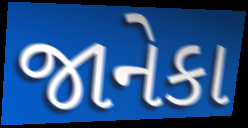
જાનેકા